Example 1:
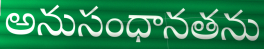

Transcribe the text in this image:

అనుసంధానతను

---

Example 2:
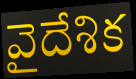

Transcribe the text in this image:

వైదేశిక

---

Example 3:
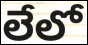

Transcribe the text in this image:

లేలో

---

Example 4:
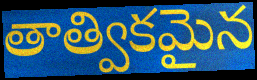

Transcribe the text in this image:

తాత్వికమైన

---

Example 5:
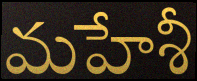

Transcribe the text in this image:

మహేశీ